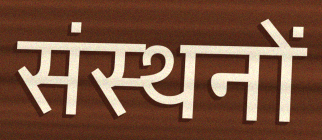
संस्थनों